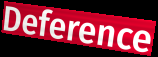
Deference